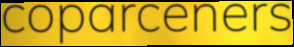
coparceners